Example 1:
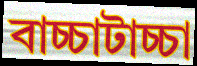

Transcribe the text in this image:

বাচ্চাটাচ্চা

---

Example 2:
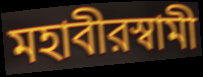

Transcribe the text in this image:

মহাবীরস্বামী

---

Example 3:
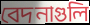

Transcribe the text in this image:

বেদনাগুলি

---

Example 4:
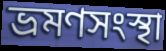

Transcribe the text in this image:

ভ্রমণসংস্থা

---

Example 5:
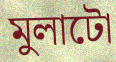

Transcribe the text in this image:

মুলাটো